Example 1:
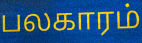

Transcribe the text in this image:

பலகாரம்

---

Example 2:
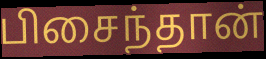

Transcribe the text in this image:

பிசைந்தான்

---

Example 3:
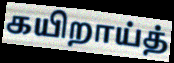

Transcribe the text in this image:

கயிறாய்த்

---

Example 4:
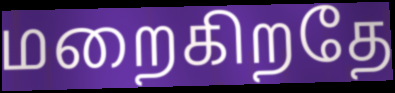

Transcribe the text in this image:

மறைகிறதே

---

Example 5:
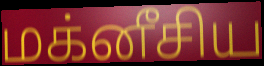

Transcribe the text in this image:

மக்னீசிய